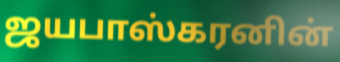
ஜயபாஸ்கரனின்